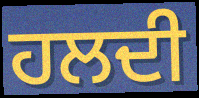
ਹਲਦੀ